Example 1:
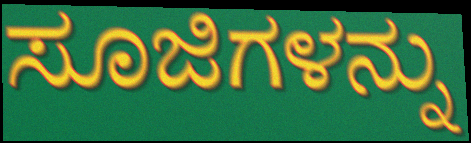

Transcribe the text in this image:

ಸೂಜಿಗಳನ್ನು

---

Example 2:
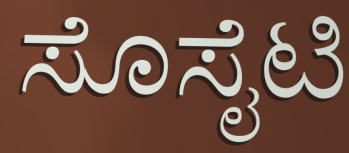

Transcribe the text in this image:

ಸೊಸೈಟಿ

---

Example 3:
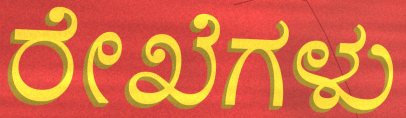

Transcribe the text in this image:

ರೇಖೆಗಳು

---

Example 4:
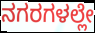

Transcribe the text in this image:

ನಗರಗಳಲ್ಲೇ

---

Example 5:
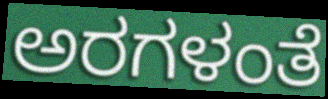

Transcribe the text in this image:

ಅರಗಳಂತೆ